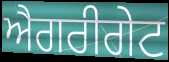
ਐਗਰੀਗੇਟ